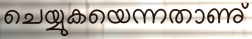
ചെയ്യുകയെന്നതാണു്